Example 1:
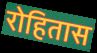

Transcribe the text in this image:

रोहितास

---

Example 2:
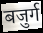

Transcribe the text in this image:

बजुर्ग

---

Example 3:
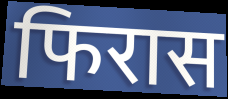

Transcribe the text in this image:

फिरास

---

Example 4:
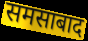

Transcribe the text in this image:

समसाबाद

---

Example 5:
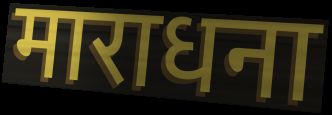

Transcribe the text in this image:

माराधना